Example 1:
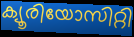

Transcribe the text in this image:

ക്യൂരിയോസിറ്റി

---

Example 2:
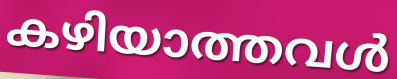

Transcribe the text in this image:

കഴിയാത്തവൾ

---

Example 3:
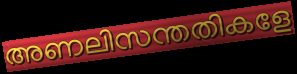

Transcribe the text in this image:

അണലിസന്തതികളേ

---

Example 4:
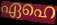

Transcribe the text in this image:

ഏഹെ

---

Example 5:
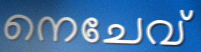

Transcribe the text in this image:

നെചേവ്